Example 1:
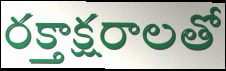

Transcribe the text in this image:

రక్తాక్షరాలతో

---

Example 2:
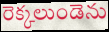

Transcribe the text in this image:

రెక్కలుండెను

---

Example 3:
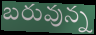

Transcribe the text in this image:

బరువున్న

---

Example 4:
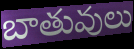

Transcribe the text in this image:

బాతువులు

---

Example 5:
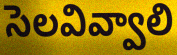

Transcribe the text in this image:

సెలవివ్వాలి